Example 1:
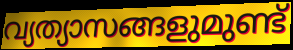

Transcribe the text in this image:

വ്യത്യാസങ്ങളുമുണ്ട്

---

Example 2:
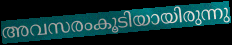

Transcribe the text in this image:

അവസരംകൂടിയായിരുന്നു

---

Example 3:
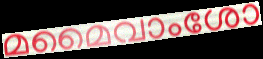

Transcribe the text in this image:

മമൈവാംശോ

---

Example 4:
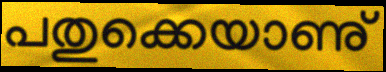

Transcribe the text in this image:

പതുക്കെയാണു്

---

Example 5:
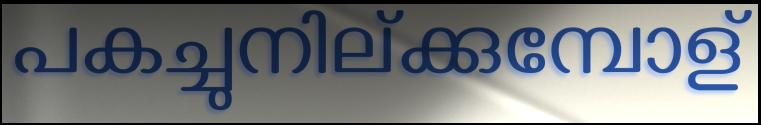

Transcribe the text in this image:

പകച്ചുനില്ക്കുമ്പോള്